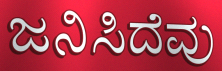
ಜನಿಸಿದೆವು